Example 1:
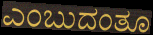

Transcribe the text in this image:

ಎಂಬುದಂತೂ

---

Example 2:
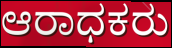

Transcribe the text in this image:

ಆರಾಧಕರು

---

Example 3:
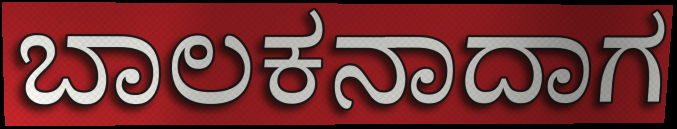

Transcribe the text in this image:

ಬಾಲಕನಾದಾಗ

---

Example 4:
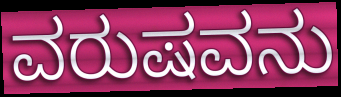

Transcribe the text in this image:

ವರುಷವನು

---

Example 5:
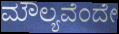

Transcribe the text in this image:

ಮೌಲ್ಯವೆಂದೇ